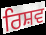
ਰਿਸ਼ਵ